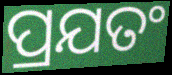
ପ୍ରଯତଂ